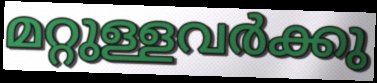
മറ്റുള്ളവർക്കു